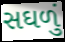
સઘળું